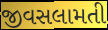
જીવસલામતી